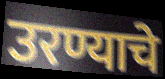
उरण्याचे